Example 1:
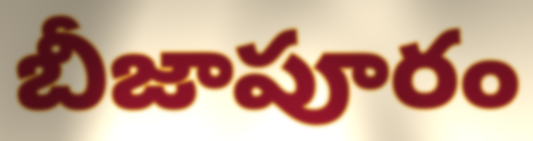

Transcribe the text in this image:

బీజాపూరం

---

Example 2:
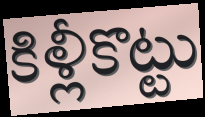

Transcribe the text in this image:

కిళ్లీకొట్టు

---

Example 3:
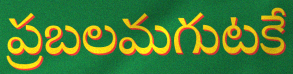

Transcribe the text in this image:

ప్రబలమగుటకే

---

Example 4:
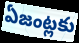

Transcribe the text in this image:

ఏజంట్లకు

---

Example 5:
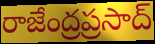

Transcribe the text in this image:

రాజేంద్రప్రసాద్